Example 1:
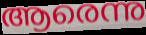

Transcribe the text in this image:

ആരെന്നു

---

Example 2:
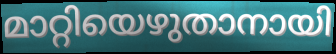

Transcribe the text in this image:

മാറ്റിയെഴുതാനായി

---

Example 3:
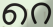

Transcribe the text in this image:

റെ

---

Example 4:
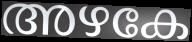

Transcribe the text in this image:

അഴകേ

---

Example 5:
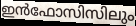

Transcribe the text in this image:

ഇൻഫോസിസിലും